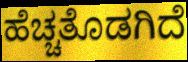
ಹೆಚ್ಚತೊಡಗಿದೆ